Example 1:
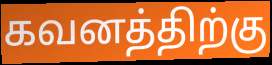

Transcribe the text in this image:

கவனத்திற்கு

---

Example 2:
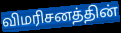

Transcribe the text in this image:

விமரிசனத்தின்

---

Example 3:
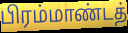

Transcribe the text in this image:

பிரம்மாண்டத்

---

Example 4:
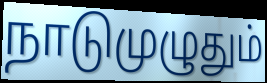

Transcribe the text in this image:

நாடுமுழுதும்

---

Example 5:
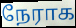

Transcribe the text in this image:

நேராக